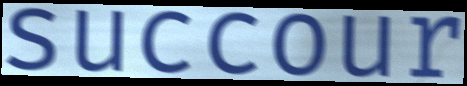
succour